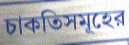
চাকতিসমূহের